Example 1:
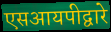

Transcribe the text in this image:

एसआयपीद्वारे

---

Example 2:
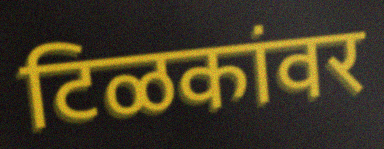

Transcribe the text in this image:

टिळकांवर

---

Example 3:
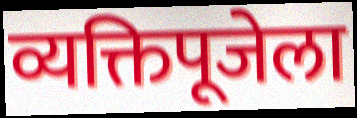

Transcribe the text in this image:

व्यक्तिपूजेला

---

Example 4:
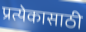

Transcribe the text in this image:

प्रत्येकासाठी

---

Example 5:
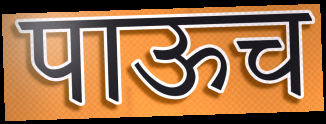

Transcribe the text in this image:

पाऊच